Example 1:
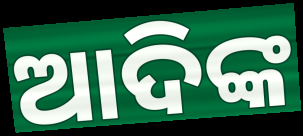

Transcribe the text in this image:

ଆଦିଙ୍କ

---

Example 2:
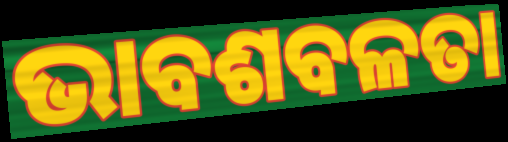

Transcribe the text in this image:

ଭାବଶବଳତା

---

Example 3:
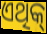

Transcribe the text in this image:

ଏଥିକ୍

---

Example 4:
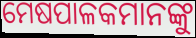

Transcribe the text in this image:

ମେଷପାଳକମାନଙ୍କୁ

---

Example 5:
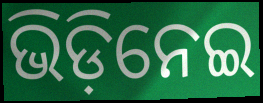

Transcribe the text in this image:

ଭିଡ଼ିନେଇ